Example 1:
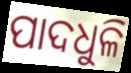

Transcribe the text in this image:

ପାଦଧୁଳି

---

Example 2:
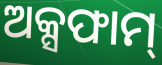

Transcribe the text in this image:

ଅକ୍ସଫାମ୍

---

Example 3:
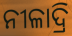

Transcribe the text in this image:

ନୀଳାଦ୍ରି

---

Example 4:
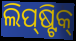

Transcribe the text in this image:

ଲିପ୍‍ଷ୍ଟିକ୍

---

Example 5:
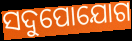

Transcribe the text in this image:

ସଦୁପୋଯୋଗ